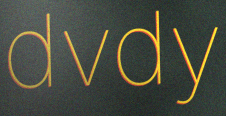
dvdy